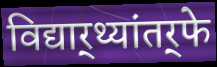
विद्यार्थ्यांतर्फे